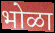
भोळा